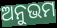
ଅନୁଭମ